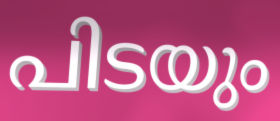
പിടയും